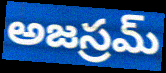
అజస్రమ్